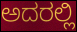
ಅದರಲ್ಲಿ